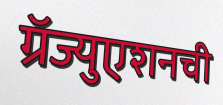
ग्रॅज्युएशनची